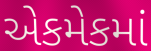
એકમેકમાં